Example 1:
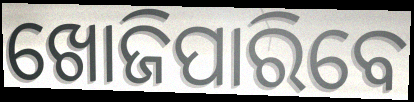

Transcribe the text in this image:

ଖୋଜିପାରିବେ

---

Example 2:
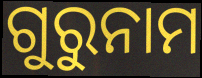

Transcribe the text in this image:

ଗୁରୁନାମ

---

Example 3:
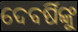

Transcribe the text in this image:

ଦେବର୍ଷିଙ୍କୁ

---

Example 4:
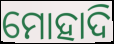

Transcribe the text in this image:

ମୋହାଦି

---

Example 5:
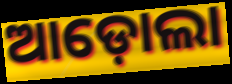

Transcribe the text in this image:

ଆଡ଼ୋଲା